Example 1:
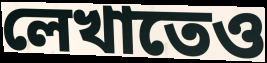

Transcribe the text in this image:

লেখাতেও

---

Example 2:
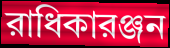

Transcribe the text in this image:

রাধিকারঞ্জন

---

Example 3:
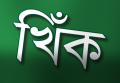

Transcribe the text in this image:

খিঁক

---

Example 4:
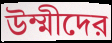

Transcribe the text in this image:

উম্মীদের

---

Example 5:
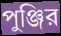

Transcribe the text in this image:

পুঞ্জির